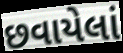
છવાયેલાં